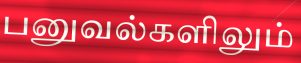
பனுவல்களிலும்